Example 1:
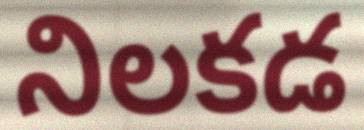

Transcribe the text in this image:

నిలకడ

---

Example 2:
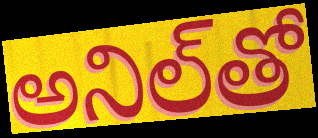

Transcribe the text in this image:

అనిల్‌తో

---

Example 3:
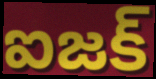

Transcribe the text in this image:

ఐజక్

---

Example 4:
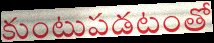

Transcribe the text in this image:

కుంటుపడటంతో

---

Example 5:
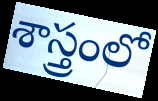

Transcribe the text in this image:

శాస్త్రంలో